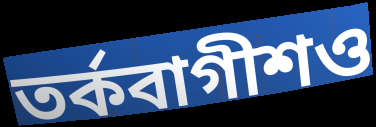
তর্কবাগীশও